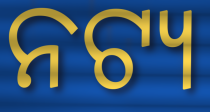
ନଟ୍ୟ